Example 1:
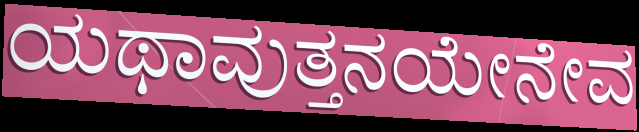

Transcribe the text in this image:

ಯಥಾವುತ್ತನಯೇನೇವ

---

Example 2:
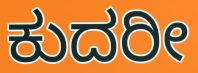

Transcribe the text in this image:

ಕುದರೀ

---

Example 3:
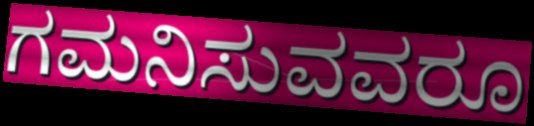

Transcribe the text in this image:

ಗಮನಿಸುವವರೂ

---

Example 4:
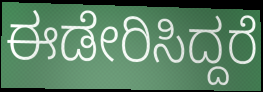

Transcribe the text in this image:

ಈಡೇರಿಸಿದ್ದರೆ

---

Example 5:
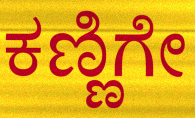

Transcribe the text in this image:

ಕಣ್ಣಿಗೇ